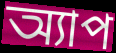
অ্যাপ